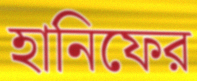
হানিফের